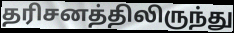
தரிசனத்திலிருந்து